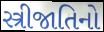
સ્ત્રીજાતિનો